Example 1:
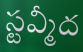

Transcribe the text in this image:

స్టవ్మీద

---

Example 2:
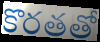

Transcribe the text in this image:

కొరతతో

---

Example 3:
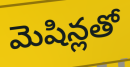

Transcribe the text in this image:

మెషిన్లతో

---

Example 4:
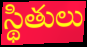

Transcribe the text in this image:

స్థితులు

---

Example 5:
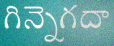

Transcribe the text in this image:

గిన్నెగదా